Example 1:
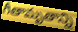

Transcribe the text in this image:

గీతామృతాన్ని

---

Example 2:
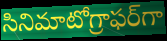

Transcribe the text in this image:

సినిమాటోగ్రాఫర్‌గా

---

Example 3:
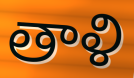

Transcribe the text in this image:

తాళి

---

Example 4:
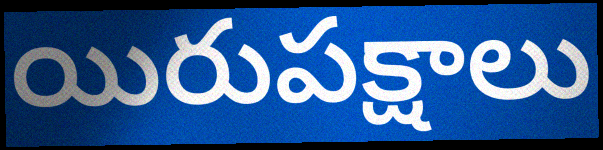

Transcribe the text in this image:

యిరుపక్షాలు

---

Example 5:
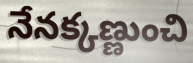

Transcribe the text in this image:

నేనక్కణ్ణుంచి